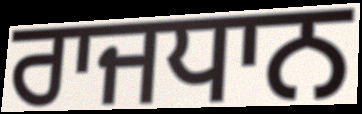
ਰਾਜਧਾਨ